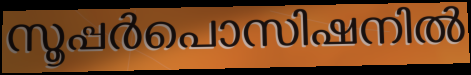
സൂപ്പർപൊസിഷനിൽ